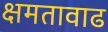
क्षमतावाढ